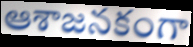
ఆశాజనకంగా